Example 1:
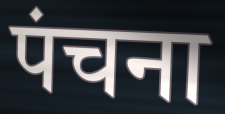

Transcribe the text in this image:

पंचना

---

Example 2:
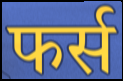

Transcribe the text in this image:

फर्स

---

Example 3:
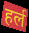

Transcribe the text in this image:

हर्ल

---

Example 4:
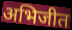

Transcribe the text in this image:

अभिजीत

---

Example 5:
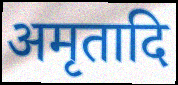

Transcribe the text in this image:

अमृतादि